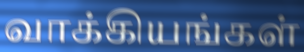
வாக்கியங்கள்